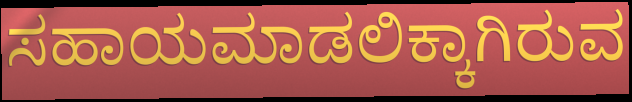
ಸಹಾಯಮಾಡಲಿಕ್ಕಾಗಿರುವ